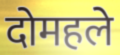
दोमहले